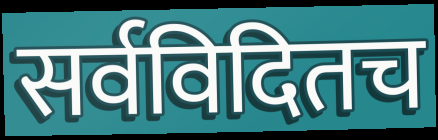
सर्वविदितच